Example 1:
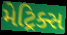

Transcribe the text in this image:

મેટ્રિક્સ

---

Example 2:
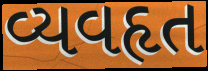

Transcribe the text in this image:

વ્યવહૃત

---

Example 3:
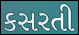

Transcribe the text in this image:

કસરતી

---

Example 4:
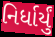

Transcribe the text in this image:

નિર્ધાર્યું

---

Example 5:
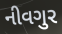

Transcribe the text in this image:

નીવગુર